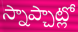
స్నాప్చాట్లో